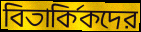
বিতার্কিকদের